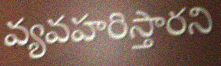
వ్యవహరిస్తారని